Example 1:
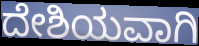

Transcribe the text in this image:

ದೇಶಿಯವಾಗಿ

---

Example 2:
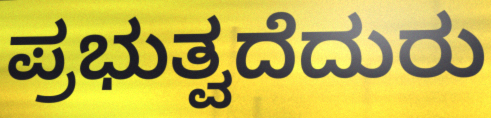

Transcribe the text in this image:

ಪ್ರಭುತ್ವದೆದುರು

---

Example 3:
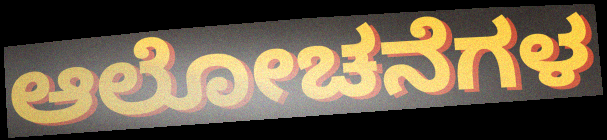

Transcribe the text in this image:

ಆಲೋಚನೆಗಳ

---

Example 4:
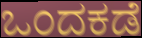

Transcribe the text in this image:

ಒಂದಕಡೆ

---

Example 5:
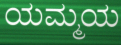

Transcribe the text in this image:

ಯಮ್ಮಯ